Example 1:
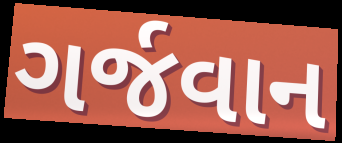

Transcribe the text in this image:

ગર્જવાન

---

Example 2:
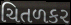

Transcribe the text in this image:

ચિતળકર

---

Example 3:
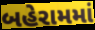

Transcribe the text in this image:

બહેરામમાં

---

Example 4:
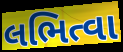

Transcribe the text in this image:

લભિત્વા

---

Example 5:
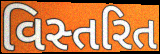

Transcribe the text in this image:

વિસ્તરિત